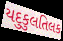
યદુકુલતિલક